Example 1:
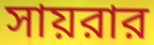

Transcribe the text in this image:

সায়রার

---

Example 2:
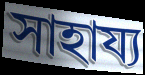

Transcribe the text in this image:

সাহায্য়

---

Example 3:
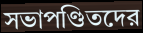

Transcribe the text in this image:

সভাপণ্ডিতদের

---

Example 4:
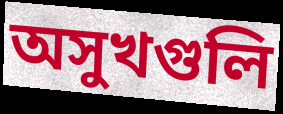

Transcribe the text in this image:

অসুখগুলি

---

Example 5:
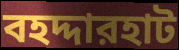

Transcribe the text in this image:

বহদ্দারহাট